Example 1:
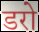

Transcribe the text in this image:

डरो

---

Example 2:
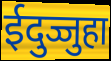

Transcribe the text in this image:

ईदुज्जुहा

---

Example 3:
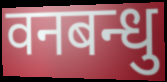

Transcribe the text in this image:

वनबन्धु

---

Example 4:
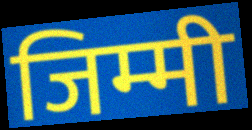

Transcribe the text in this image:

जिम्मी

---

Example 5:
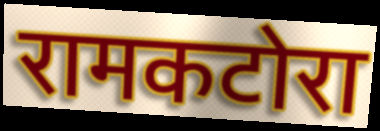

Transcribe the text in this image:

रामकटोरा